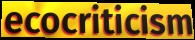
ecocriticism